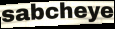
sabcheye